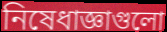
নিষেধাজ্ঞাগুলো